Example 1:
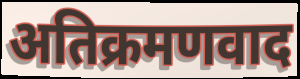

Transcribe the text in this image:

अतिक्रमणवाद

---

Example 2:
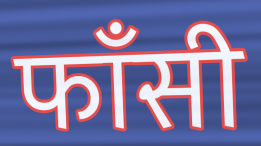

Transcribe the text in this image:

फाँसी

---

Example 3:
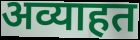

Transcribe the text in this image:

अव्याहत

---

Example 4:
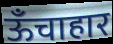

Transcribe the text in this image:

ऊँचाहार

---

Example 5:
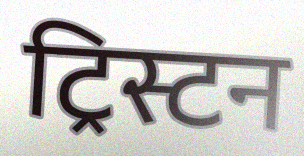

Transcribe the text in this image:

ट्रिस्टन